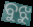
ବୁଝୁ